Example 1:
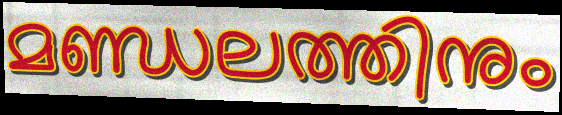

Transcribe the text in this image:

മണ്ഡലത്തിനും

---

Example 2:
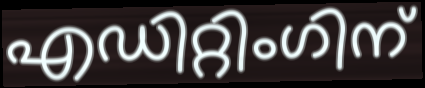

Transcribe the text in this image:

എഡിറ്റിംഗിന്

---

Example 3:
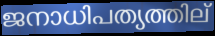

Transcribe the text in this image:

ജനാധിപത്യത്തില്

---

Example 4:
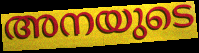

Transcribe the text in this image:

അനയുടെ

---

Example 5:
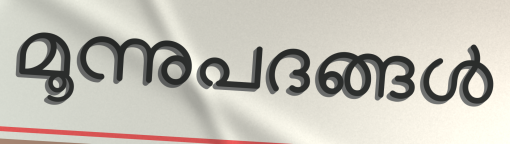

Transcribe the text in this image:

മൂന്നുപദങ്ങൾ